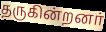
தருகின்றனர்